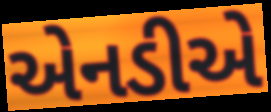
એનડીએ